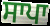
ਸਾਪਾ